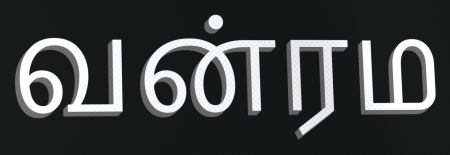
வன்ரம